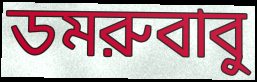
ডমরুবাবু